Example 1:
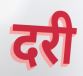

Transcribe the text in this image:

दरी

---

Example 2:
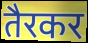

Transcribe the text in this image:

तैरकर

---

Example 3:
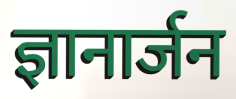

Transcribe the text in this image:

ज्ञानार्जन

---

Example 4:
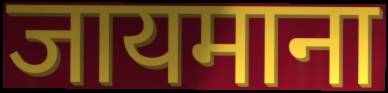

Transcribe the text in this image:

जायमाना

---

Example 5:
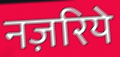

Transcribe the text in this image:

नज़रिये